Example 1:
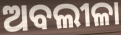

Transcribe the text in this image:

ଅବଲୀଳା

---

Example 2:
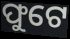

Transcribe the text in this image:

ଫୁଟେ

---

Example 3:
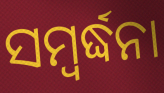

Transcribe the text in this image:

ସମ୍ୱର୍ଦ୍ଧନା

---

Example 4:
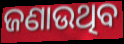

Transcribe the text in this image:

ଜଣାଉଥିବ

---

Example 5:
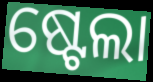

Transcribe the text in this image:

ଷ୍ଟେଲା